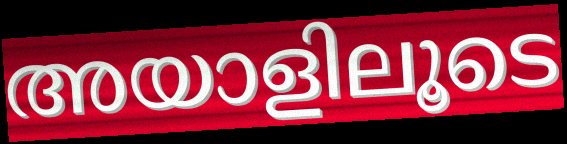
അയാളിലൂടെ